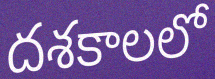
దశకాలలో